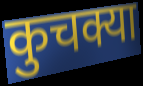
कुचक्या